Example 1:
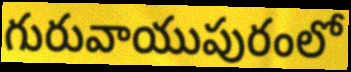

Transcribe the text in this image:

గురువాయుపురంలో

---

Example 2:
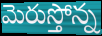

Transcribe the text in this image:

మెరుస్తోన్న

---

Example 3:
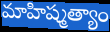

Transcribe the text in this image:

మాహిష్మత్యాం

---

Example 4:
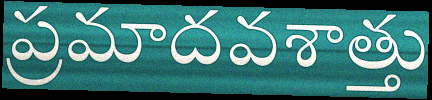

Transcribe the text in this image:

ప్రమాదవశాత్తు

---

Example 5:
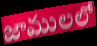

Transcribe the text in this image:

జాములలో